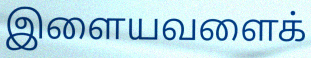
இளையவளைக்